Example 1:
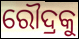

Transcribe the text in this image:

ରୌଦ୍ରକୁ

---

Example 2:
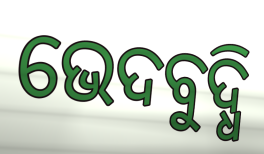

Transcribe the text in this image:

ଭେଦବୁଦ୍ଧି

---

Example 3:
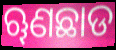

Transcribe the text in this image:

ୠଣଛାଡ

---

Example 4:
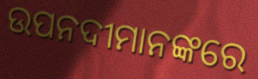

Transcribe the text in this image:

ଉପନଦୀମାନଙ୍କରେ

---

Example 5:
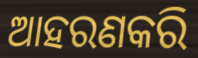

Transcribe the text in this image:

ଆହରଣକରି